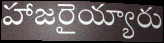
హాజరైయ్యారు